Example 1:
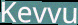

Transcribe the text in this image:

Kevvu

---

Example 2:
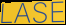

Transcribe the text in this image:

LASE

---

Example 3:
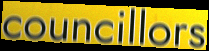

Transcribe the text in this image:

councillors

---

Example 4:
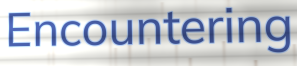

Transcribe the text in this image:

Encountering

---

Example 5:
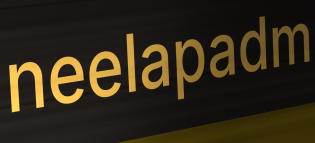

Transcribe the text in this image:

neelapadm